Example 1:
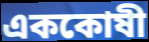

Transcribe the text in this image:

এককোষী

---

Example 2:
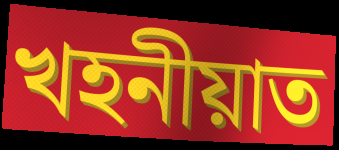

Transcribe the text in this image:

খহনীয়াত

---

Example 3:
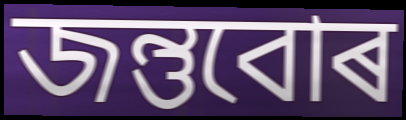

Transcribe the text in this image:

জন্তুবোৰ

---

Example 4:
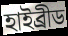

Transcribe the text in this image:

হাইব্ৰীড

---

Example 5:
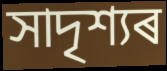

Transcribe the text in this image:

সাদৃশ্যৰ